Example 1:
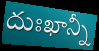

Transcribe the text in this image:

దుఃఖాన్నీ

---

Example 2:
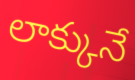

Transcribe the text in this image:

లాక్కునే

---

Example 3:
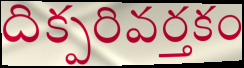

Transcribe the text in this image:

దిక్పరివర్తకం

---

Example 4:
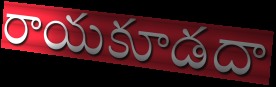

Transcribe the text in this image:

రాయకూడదా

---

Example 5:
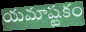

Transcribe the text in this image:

యమాష్టకం